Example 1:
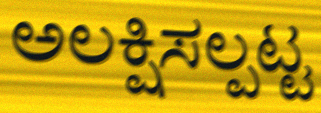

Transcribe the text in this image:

ಅಲಕ್ಷಿಸಲ್ಪಟ್ಟ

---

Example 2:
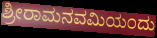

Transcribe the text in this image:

ಶ್ರೀರಾಮನವಮಿಯಂದು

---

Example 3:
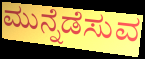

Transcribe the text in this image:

ಮುನ್ನೆಡೆಸುವ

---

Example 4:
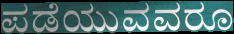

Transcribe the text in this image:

ಪಡೆಯುವವರೂ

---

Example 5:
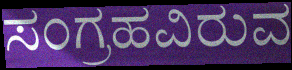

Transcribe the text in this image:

ಸಂಗ್ರಹವಿರುವ